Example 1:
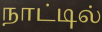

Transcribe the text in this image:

நாட்டில்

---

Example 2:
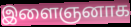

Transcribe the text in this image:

இளைஞனாக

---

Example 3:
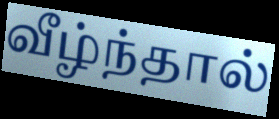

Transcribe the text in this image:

வீழ்ந்தால்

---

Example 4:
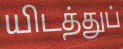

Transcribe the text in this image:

யிடத்துப்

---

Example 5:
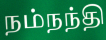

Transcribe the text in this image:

நம்நந்தி